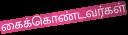
கைக்கொண்டவர்கள்